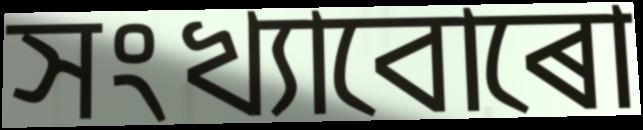
সংখ্যাবোৰো